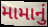
મામાનું